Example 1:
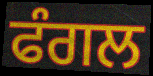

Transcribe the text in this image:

ਫੰਗਲ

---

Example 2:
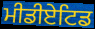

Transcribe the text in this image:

ਮੀਡੀਏਟਿਡ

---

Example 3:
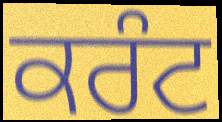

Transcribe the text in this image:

ਕਰੰਟ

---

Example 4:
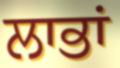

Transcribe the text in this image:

ਲਾਭਾਂ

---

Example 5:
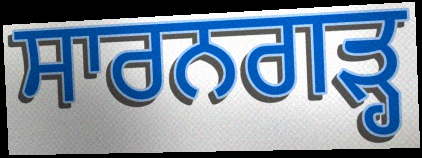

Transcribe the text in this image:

ਸਾਰਨਗੜ੍ਹ